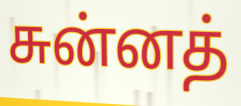
சுன்னத்